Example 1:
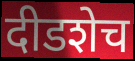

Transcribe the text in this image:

दीडशेच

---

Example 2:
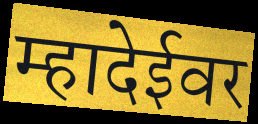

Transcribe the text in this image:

म्हादेईवर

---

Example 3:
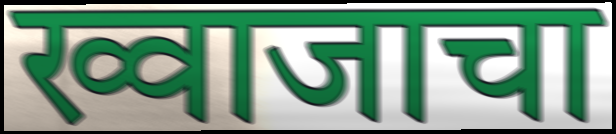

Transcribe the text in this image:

ख्वाजाचा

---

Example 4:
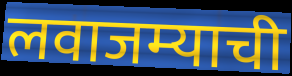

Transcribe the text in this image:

लवाजम्याची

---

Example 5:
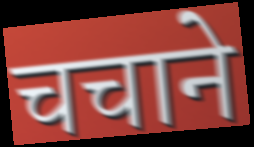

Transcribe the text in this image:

चचाने